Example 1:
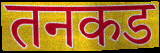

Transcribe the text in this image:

तनकड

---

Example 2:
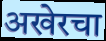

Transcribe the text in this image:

अखेरचा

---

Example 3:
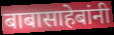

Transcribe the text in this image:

बाबासाहेबांनी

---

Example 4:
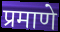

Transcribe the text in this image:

प्रमाणे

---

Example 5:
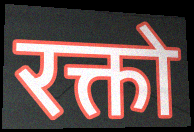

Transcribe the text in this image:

रक्तो